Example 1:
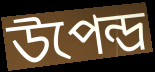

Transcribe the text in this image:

উপেন্দ্ৰ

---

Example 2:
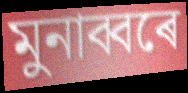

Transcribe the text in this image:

মুনাব্বৰে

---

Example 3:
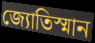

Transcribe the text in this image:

জ্যোতিস্মান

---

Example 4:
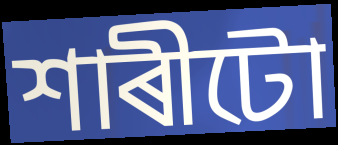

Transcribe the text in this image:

শাৰীটো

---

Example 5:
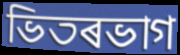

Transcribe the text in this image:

ভিতৰভাগ